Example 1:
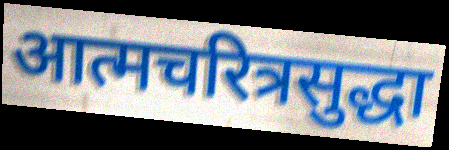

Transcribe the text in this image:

आत्मचरित्रसुद्धा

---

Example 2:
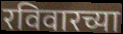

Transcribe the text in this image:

रविवारच्या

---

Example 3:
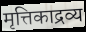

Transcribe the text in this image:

मृत्तिकाद्रव्य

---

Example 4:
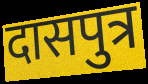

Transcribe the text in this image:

दासपुत्र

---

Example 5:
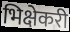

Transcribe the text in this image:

भिक्षेकरी